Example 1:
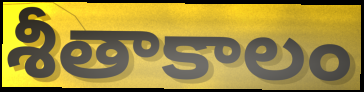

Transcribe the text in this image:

శీతాకాలం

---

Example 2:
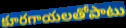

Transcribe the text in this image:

కూరగాయలతోపాటు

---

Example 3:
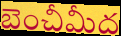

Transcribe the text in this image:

బెంచీమీద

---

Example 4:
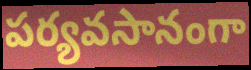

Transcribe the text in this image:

పర్యవసానంగా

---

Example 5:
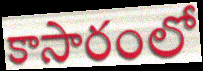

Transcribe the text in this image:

కాసారంలో